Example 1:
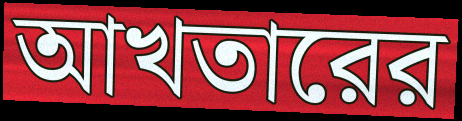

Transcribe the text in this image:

আখতারের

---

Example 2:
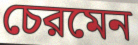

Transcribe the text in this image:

চেরমেন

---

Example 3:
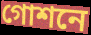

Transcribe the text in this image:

গোশনে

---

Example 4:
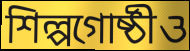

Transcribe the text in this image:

শিল্পগোষ্ঠীও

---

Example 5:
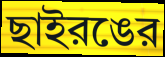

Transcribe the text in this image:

ছাইরঙের